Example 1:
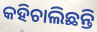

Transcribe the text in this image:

କହିଚାଲିଛନ୍ତି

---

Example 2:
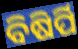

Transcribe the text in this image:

ବିଷିର୍ପି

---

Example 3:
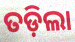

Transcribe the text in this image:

ତଡ଼ିଲା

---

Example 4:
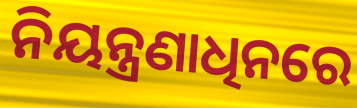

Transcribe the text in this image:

ନିୟନ୍ତ୍ରଣାଧିନରେ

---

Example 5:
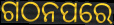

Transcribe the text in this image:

ଗଠନପରେ